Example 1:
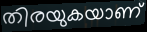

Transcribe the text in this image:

തിരയുകയാണ്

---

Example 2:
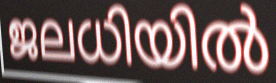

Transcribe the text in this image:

ജലധിയിൽ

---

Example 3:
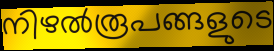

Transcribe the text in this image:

നിഴൽരൂപങ്ങളുടെ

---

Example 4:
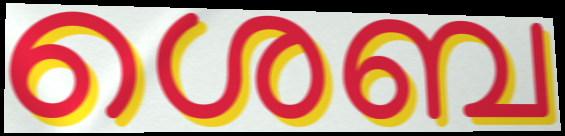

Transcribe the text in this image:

ശെബ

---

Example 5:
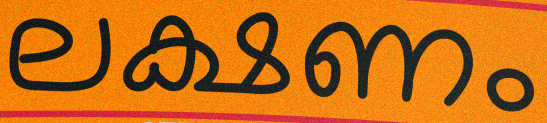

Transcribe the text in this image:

ലക്ഷണം